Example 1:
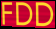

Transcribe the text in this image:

FDD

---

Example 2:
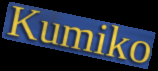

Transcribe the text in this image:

Kumiko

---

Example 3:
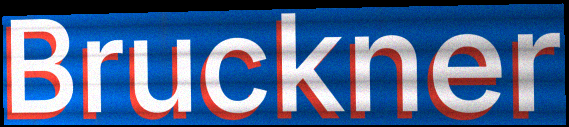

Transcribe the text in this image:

Bruckner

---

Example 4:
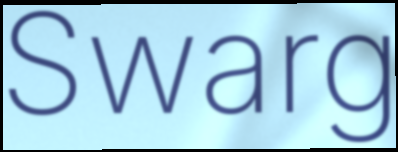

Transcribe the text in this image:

Swarg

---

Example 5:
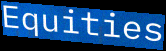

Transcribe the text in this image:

Equities